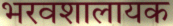
भरवशालायक